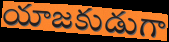
యాజకుడుగా